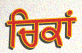
ਚਿਕਾਂ